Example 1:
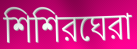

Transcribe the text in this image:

শিশিরঘেরা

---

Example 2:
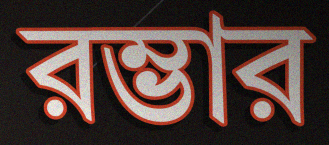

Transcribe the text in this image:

রম্ভার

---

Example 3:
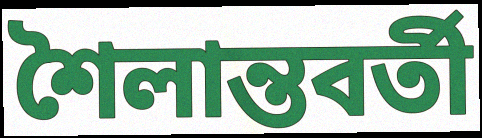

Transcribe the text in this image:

শৈলান্তবর্তী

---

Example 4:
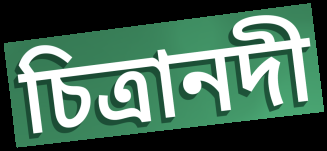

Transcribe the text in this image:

চিত্রানদী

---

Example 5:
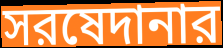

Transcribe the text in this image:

সরষেদানার